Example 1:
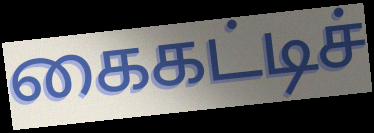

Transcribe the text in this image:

கைகட்டிச்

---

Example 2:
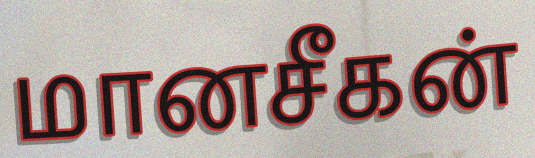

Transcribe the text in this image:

மானசீகன்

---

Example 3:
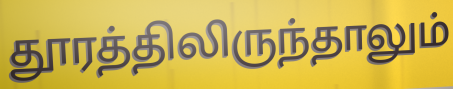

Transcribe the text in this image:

தூரத்திலிருந்தாலும்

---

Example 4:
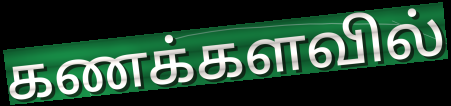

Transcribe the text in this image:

கணக்களவில்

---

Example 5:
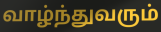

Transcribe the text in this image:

வாழ்ந்துவரும்